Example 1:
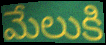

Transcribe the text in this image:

మేలుకి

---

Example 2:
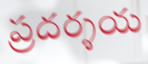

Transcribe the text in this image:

ప్రదర్శయ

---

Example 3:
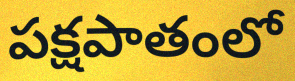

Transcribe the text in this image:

పక్షపాతంలో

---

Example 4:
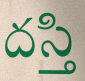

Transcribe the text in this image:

దస్తి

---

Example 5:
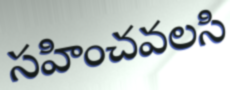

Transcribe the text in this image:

సహించవలసి